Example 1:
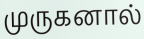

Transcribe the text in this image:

முருகனால்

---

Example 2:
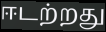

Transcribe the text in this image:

ஈடற்றது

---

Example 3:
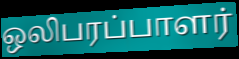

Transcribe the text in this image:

ஒலிபரப்பாளர்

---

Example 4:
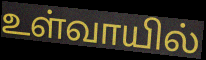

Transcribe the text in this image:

உள்வாயில்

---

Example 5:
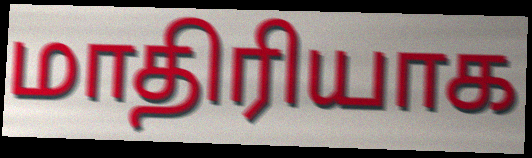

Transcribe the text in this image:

மாதிரியாக